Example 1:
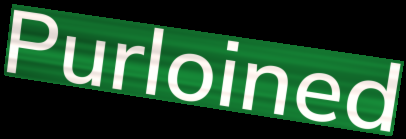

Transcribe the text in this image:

Purloined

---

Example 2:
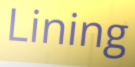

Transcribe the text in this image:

Lining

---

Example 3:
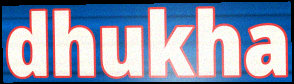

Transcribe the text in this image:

dhukha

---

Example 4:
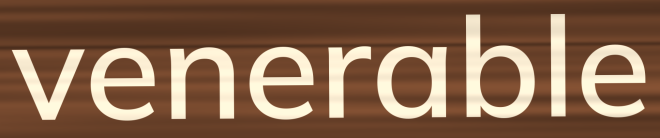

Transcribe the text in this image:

venerable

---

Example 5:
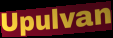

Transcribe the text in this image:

Upulvan